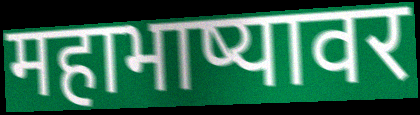
महाभाष्यावर